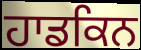
ਹਾਡਕਿਨ